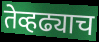
तेव्हढ्याच